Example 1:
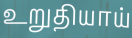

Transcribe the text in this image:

உறுதியாய்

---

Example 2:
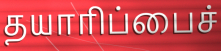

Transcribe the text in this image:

தயாரிப்பைச்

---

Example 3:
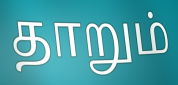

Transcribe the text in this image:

தாறும்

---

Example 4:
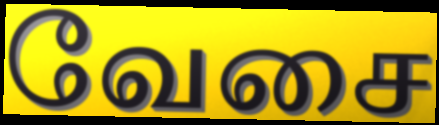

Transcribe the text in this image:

வேசை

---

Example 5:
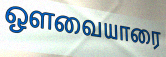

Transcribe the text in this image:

ஔவையாரை